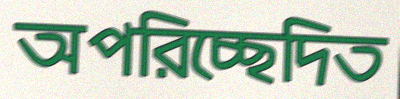
অপরিচ্ছেদিত